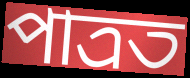
পাত্ৰত